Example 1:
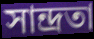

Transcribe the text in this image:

সান্দ্রতা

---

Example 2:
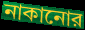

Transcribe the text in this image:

নাকানোর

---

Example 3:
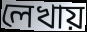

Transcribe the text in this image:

লেখায়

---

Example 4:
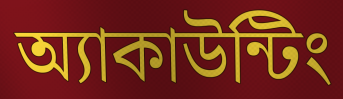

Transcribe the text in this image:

অ্যাকাউন্টিং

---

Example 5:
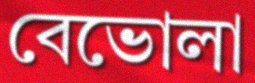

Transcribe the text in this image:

বেভোলা